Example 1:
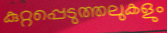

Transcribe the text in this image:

കുറ്റപ്പെടുത്തലുകളും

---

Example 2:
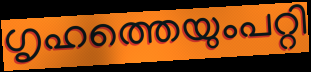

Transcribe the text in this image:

ഗൃഹത്തെയുംപറ്റി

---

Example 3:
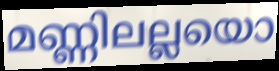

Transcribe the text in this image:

മണ്ണിലല്ലയൊ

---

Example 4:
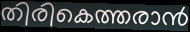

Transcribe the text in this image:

തിരികെത്തരാൻ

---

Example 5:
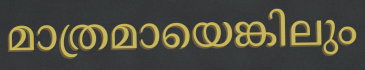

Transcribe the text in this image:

മാത്രമായെങ്കിലും